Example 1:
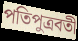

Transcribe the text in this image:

পতিপুত্রবতী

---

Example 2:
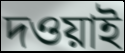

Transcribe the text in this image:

দওয়াই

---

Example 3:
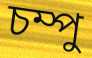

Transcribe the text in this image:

চম্পু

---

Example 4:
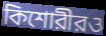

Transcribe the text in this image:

কিশোরীরও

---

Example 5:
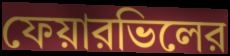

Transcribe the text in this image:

ফেয়ারভিলের